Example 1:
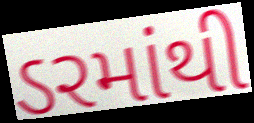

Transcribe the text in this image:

ડરમાંથી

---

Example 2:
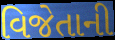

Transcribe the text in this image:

વિજેતાની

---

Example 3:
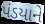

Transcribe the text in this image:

પંડયાને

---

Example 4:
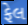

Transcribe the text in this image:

ફેલ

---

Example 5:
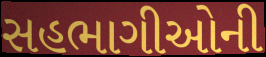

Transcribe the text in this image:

સહભાગીઓની